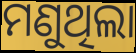
ମଣୁଥିଲା